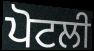
ਪੋਟਲੀ